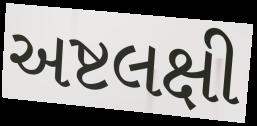
અષ્ટલક્ષી